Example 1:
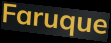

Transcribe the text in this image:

Faruque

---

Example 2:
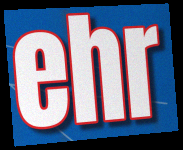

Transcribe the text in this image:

ehr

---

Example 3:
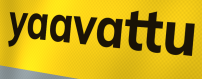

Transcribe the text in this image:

yaavattu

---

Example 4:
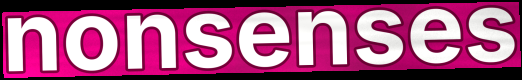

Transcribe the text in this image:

nonsenses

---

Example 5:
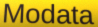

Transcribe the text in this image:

Modata